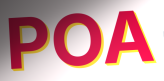
POA